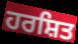
ਹਰਸ਼ਿਤ